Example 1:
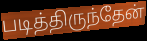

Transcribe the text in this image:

படித்திருந்தேன்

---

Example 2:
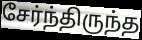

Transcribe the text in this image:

சேர்ந்திருந்த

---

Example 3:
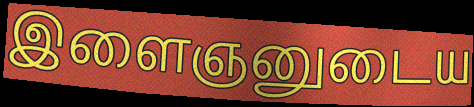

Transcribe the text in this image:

இளைஞனுடைய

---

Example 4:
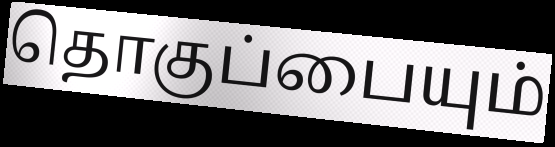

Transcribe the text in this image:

தொகுப்பையும்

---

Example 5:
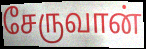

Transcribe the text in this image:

சேருவான்